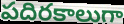
పదిరకాలుగా